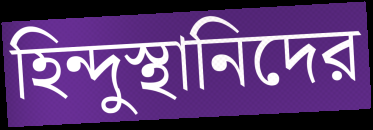
হিন্দুস্থানিদের